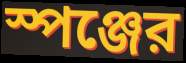
স্পঞ্জের